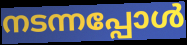
നടന്നപ്പോൾ